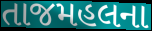
તાજમહલના